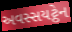
અવસ્સયટ્ઠેન